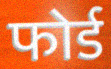
फोर्ड